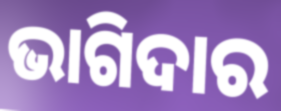
ଭାଗିଦାର